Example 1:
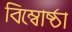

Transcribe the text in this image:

বিম্বোষ্ঠা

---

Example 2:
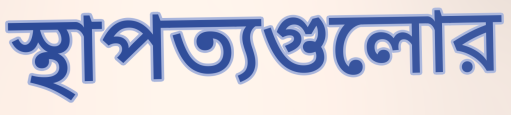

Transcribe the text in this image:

স্থাপত্যগুলোর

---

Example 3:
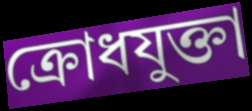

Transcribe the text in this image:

ক্রোধযুক্তা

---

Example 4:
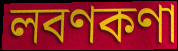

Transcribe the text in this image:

লবণকণা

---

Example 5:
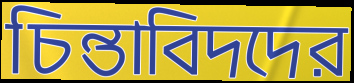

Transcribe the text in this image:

চিন্তাবিদদের